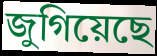
জুগিয়েছে